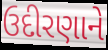
ઉદીરણાને